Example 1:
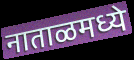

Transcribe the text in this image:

नाताळमध्ये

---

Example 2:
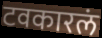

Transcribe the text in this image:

टवकारलं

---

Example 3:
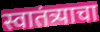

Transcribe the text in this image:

स्वातंत्र्याचा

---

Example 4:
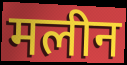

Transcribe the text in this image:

मलीन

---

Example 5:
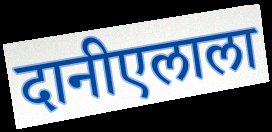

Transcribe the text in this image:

दानीएलाला